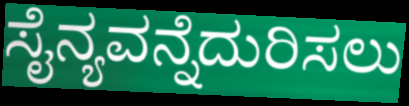
ಸೈನ್ಯವನ್ನೆದುರಿಸಲು